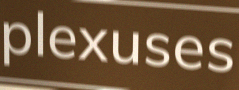
plexuses